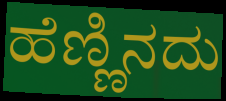
ಹೆಣ್ಣಿನದು